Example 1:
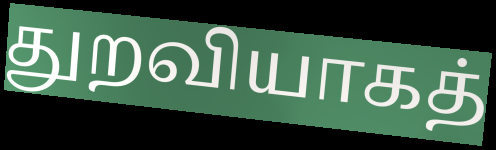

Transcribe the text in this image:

துறவியாகத்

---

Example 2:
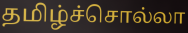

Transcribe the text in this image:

தமிழ்ச்சொல்லா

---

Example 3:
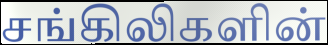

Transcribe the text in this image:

சங்கிலிகளின்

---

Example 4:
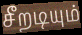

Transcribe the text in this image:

சீறடியும்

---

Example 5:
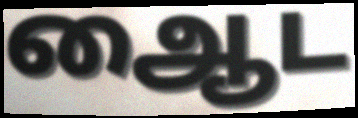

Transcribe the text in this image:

ஆைட